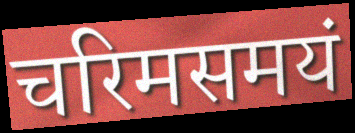
चरिमसमयं